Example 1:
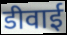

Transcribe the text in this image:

डीवाई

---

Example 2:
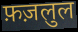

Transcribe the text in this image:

फ़ज़लुल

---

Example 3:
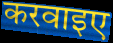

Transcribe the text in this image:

करवाइए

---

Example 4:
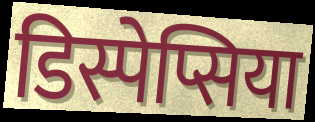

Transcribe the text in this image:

डिस्पेप्सिया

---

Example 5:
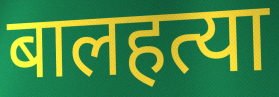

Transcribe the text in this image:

बालहत्या